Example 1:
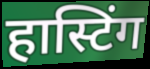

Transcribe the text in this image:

हास्टिंग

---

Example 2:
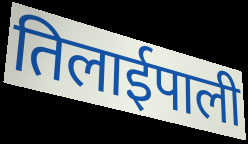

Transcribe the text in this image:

तिलाईपाली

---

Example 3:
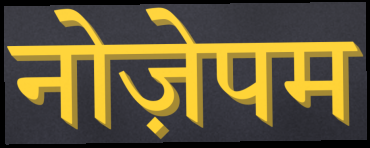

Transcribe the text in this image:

नोज़ेपम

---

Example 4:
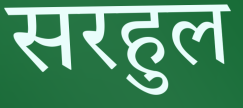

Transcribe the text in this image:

सरहुल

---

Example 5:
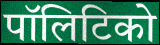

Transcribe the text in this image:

पॉलिटिको